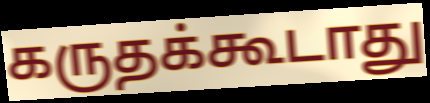
கருதக்கூடாது